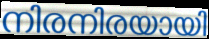
നിരനിരയായി